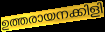
ഉത്തരായനക്കിളി